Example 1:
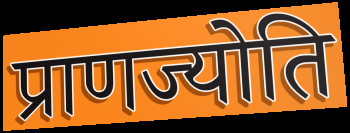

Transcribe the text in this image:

प्राणज्योति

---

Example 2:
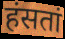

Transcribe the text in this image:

हंसतां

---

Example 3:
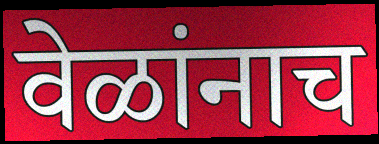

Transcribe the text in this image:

वेळांनाच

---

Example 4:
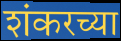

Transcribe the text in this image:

शंकरच्या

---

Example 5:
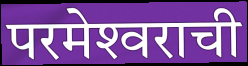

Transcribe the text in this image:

परमेश्‍वराची